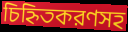
চিহ্নিতকরণসহ